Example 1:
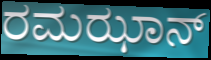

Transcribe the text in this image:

ರಮಝಾನ್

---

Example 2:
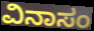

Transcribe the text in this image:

ವಿನಾಸಂ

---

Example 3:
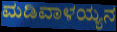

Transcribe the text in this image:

ಮಡಿವಾಳಯ್ಯನ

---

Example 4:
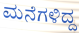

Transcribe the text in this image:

ಮನೆಗಳಿದ್ದ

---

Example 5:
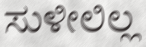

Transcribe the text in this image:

ಸುಳೀಲಿಲ್ಲ